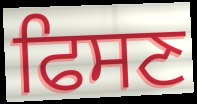
ਫਿਸਣ